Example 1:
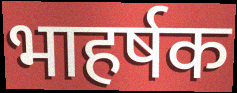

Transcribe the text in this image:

भाहर्षक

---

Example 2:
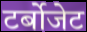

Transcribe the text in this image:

टर्बोजेट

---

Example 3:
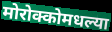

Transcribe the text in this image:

मोरोक्कोमधल्या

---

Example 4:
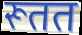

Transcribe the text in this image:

रूतत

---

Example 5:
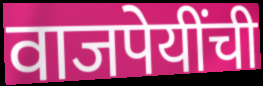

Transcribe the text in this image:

वाजपेयींची